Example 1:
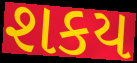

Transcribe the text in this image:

શકય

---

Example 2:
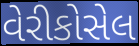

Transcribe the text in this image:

વેરીકોસેલ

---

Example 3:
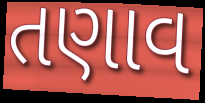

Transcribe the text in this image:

તણાવ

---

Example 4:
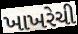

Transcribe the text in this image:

ખાખરેચી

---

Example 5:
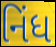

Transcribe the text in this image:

નિંધ